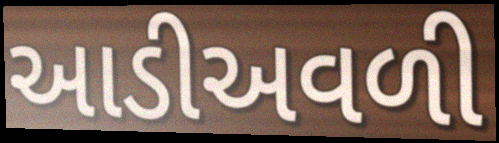
આડીઅવળી